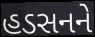
હડસનને